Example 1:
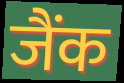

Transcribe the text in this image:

जैंक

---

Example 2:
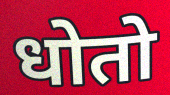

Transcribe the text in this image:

धोतो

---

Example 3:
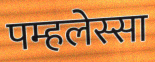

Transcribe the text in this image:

पम्हलेस्सा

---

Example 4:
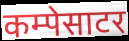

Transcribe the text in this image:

कम्पेसाटर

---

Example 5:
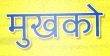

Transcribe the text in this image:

मुखको